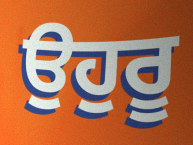
ਉਹੁਰੂ